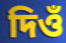
দিওঁ